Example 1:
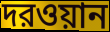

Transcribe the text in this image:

দরওয়ান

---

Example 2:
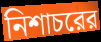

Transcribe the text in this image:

নিশাচরের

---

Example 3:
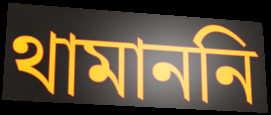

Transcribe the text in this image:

থামাননি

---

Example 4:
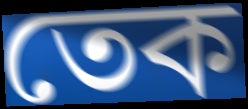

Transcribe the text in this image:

তেক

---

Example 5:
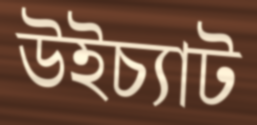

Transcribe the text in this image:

উইচ্যাট